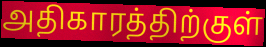
அதிகாரத்திற்குள்